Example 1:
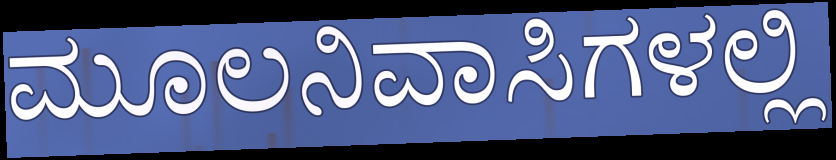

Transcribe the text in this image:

ಮೂಲನಿವಾಸಿಗಳಲ್ಲಿ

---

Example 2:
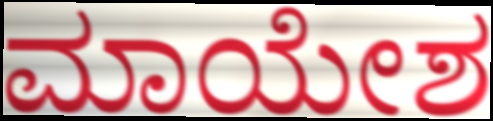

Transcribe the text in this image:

ಮಾಯೇಶ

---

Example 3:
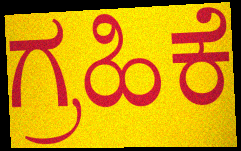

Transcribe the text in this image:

ಗ್ರಹಿಕೆ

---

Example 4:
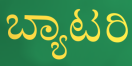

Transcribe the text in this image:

ಬ್ಯಾಟರಿ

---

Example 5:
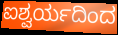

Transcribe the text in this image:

ಐಶ್ವರ್ಯದಿಂದ